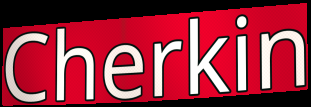
Cherkin